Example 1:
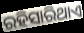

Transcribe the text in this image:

ରହିସାରିଥାଏ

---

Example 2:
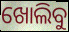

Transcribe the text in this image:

ଖୋଲିବୁ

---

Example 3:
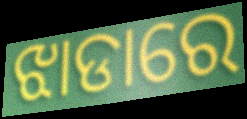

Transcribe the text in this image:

ଝାଡାରେ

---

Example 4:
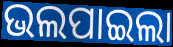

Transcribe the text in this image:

ଭଲପାଇଲା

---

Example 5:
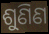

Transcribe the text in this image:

ଶୁଣିଣ